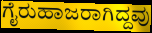
ಗೈರುಹಾಜರಾಗಿದ್ದವು